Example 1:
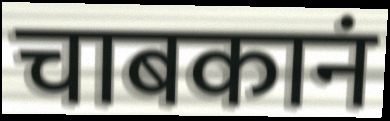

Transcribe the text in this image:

चाबकानं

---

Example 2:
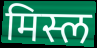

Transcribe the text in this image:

मिस्ल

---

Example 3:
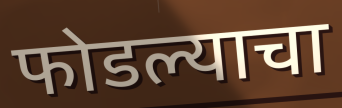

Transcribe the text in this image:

फोडल्याचा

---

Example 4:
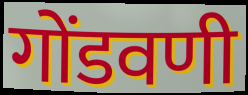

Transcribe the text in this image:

गोंडवणी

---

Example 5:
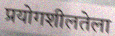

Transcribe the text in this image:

प्रयोगशीलतेला